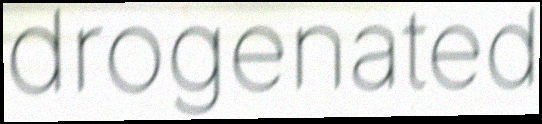
drogenated